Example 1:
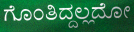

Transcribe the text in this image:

ಗೊಂತಿದ್ದಲ್ಲದೋ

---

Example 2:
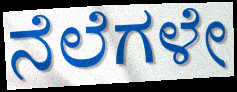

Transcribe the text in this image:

ನೆಲೆಗಳೇ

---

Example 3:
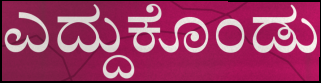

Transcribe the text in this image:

ಎದ್ದುಕೊಂಡು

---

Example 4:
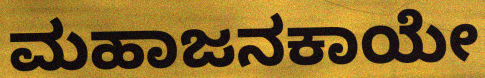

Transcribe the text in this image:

ಮಹಾಜನಕಾಯೇ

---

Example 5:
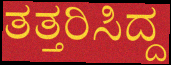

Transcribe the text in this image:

ತತ್ತರಿಸಿದ್ದ